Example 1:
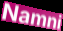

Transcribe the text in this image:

Namni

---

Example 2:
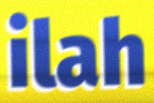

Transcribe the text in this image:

ilah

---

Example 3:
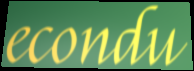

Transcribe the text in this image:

econdu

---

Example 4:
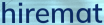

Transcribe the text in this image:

hiremat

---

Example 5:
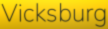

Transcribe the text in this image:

Vicksburg